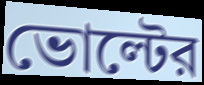
ভোল্টের